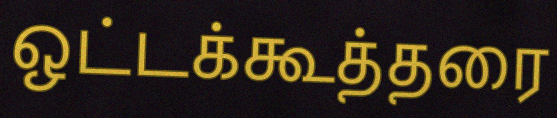
ஒட்டக்கூத்தரை